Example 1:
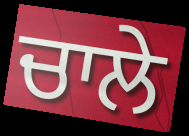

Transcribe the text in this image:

ਚਾਲੇ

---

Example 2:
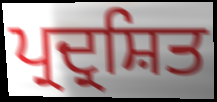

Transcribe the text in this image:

ਪ੍ਰਦ੍ਰਸ਼ਿਤ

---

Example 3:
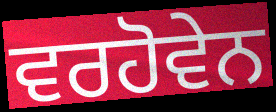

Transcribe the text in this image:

ਵਰਹੋਵੇਨ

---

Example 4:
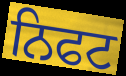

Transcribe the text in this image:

ਨਿਫਟ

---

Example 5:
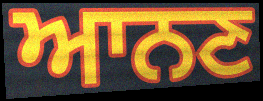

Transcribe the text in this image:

ਆਨਣ